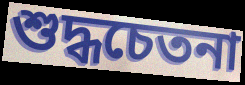
শুদ্ধচেতনা